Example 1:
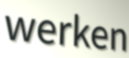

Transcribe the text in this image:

werken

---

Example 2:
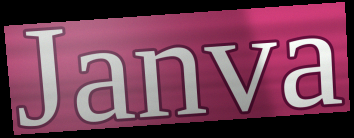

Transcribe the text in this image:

Janva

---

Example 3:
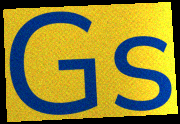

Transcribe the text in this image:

Gs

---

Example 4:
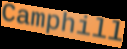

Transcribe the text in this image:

Camphill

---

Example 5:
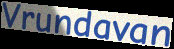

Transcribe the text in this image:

Vrundavan